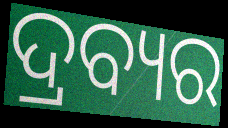
ଦ୍ରବ୍ୟର